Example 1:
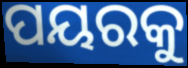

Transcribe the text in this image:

ପୟରକୁ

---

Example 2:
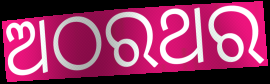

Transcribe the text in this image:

ଅଠରଥର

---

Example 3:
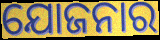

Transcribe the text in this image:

ଯୋଜନାର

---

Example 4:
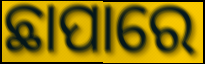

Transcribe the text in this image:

ଛାପାରେ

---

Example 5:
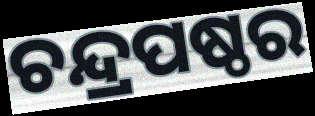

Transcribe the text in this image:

ଚନ୍ଦ୍ରପଷ୍ଠର